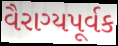
વૈરાગ્યપૂર્વક